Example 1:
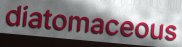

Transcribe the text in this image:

diatomaceous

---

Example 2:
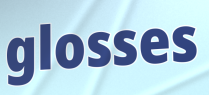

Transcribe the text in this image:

glosses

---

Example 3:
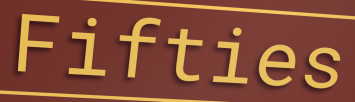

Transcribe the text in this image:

Fifties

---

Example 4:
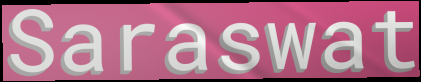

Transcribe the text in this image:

Saraswat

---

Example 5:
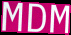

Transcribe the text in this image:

MDM